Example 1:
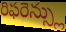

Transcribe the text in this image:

రిఫరెన్స్లు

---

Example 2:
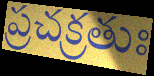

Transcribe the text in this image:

ప్రచక్రతుః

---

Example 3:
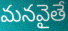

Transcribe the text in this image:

మనవైతే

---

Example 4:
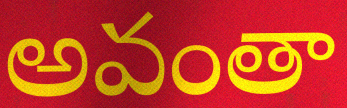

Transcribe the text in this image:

అవంతా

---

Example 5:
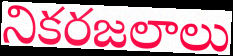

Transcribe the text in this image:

నికరజలాలు